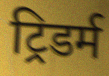
ट्रिडर्म